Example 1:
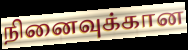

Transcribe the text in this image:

நினைவுக்கான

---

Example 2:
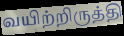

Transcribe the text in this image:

வயிற்றிருத்தி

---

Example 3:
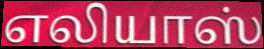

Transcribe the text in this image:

எலியாஸ்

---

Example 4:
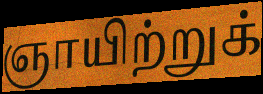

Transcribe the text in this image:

ஞாயிற்றுக்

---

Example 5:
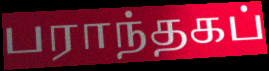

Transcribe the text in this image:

பராந்தகப்